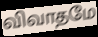
விவாதமே